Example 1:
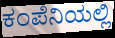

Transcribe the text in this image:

ಕಂಪೆನಿಯಲ್ಲಿ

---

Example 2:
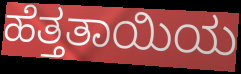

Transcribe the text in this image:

ಹೆತ್ತತಾಯಿಯ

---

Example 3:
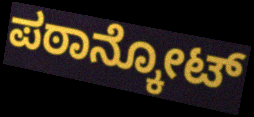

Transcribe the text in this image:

ಪಠಾನ್ಕೋಟ್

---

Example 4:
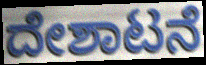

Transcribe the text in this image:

ದೇಶಾಟನೆ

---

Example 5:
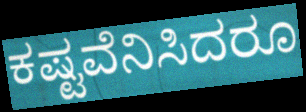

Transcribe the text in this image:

ಕಷ್ಟವೆನಿಸಿದರೂ